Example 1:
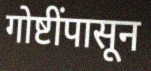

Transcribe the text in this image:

गोष्टींपासून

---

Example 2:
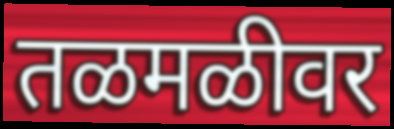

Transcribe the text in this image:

तळमळीवर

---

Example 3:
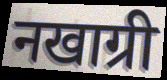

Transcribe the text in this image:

नखाग्री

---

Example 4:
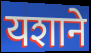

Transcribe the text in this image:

यशाने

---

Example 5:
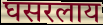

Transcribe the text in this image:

घसरलाय